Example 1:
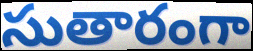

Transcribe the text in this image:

సుతారంగా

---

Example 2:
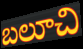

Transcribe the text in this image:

బలూచి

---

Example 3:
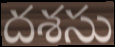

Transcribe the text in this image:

దశసు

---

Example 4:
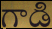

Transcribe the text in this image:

గాడి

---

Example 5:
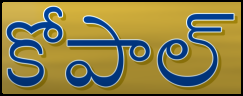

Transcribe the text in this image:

కోపాల్